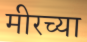
मीरच्या